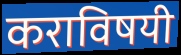
कराविषयी